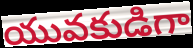
యువకుడిగా